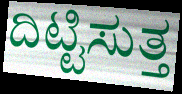
ದಿಟ್ಟಿಸುತ್ತ